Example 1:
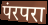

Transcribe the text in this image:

पंरपरा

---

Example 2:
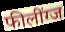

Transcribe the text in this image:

फीलींग्ज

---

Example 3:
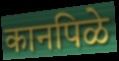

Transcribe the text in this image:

कानपिळे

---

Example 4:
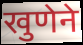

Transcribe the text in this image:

खुणेने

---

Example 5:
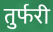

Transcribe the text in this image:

तुर्फरी